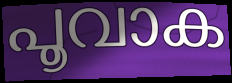
പൂവാക